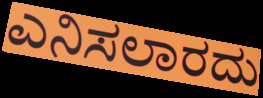
ಎನಿಸಲಾರದು